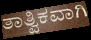
ತಾತ್ವಿಕವಾಗಿ